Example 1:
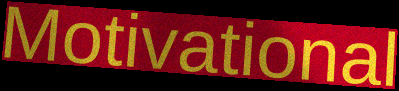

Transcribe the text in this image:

Motivational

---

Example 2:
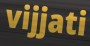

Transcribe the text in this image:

vijjati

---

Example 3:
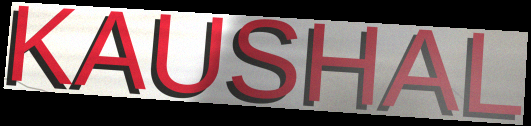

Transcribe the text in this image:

KAUSHAL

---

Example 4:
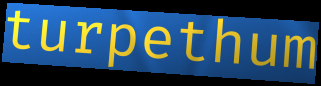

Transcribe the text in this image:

turpethum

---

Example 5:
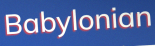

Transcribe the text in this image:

Babylonian